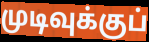
முடிவுக்குப்